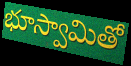
భూస్వామితో